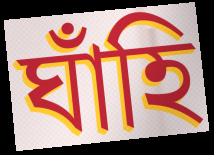
ঘাঁহি